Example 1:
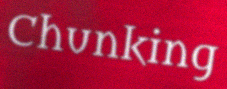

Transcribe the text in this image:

Chunking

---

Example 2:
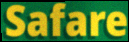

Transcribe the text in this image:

Safare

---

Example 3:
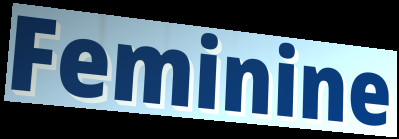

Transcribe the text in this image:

Feminine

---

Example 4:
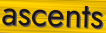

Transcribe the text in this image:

ascents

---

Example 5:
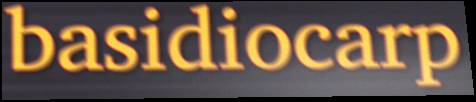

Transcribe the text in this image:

basidiocarp